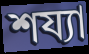
শয্যা